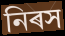
নিৰস